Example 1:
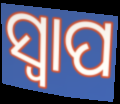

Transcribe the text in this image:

ସ୍ବାପ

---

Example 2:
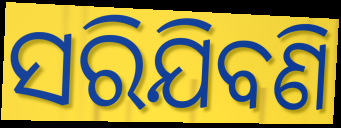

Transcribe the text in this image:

ସରିଯିବଣି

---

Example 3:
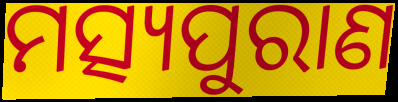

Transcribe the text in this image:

ମତ୍ସ୍ୟପୁରାଣ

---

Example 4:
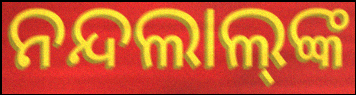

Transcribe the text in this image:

ନନ୍ଦଲାଲ୍‌ଙ୍କ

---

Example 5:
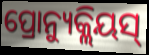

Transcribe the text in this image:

ପ୍ରୋନ୍ୟୁକ୍ଲିୟସ୍